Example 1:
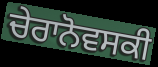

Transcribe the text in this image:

ਚੇਰਾਨੋਵਸਕੀ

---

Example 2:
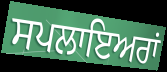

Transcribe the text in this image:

ਸਪਲਾਇਅਰਾਂ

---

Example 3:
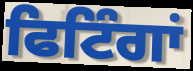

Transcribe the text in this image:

ਫਿਟਿੰਗਾਂ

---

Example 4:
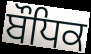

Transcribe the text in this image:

ਬੌਧਿਕ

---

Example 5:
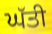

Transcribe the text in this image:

ਘੱਤੀ